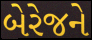
બેરેજને